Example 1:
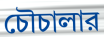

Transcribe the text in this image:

চৌচালার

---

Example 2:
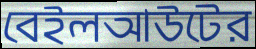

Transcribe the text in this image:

বেইলআউটের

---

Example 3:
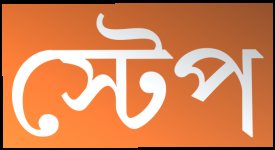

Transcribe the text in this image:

স্টেপ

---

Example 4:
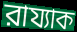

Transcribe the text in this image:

রায্যাক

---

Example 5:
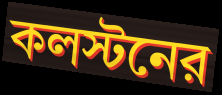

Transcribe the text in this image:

কলস্টনের